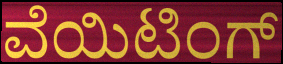
ವೆಯಿಟಿಂಗ್